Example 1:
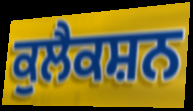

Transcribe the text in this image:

ਕੁਲੈਕਸ਼ਨ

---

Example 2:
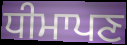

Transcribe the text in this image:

ਧੀਮਾਪਣ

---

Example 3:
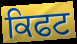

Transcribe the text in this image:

ਕਿਫਟ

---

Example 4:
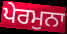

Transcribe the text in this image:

ਪੇਰਮੁਨਾ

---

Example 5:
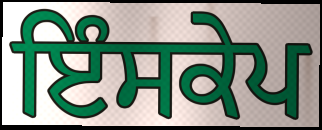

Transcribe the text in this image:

ਇੰਸਕੇਪ